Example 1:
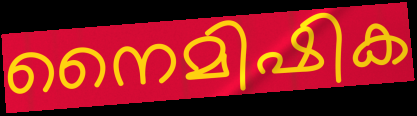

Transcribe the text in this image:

നൈമിഷിക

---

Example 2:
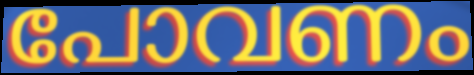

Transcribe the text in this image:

പോവണം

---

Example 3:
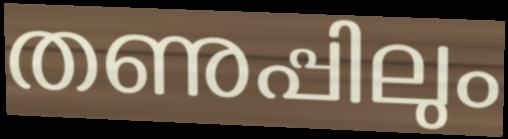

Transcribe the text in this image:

തണുപ്പിലും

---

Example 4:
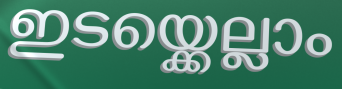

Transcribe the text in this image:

ഇടയ്ക്കെല്ലാം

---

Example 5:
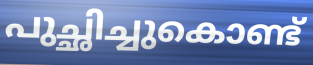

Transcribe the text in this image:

പുച്ഛിച്ചുകൊണ്ട്